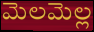
మెలమెల్ల